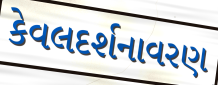
કેવલદર્શનાવરણ